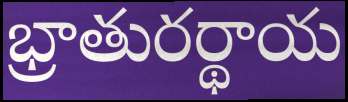
భ్రాతురర్థాయ